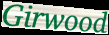
Girwood